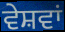
ਵੇਸ਼ਵਾਂ